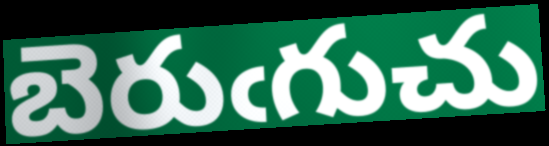
బెరుఁగుచు